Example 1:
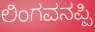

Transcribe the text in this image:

ಲಿಂಗವನಪ್ಪಿ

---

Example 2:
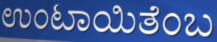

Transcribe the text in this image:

ಉಂಟಾಯಿತೆಂಬ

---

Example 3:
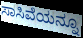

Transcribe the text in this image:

ಸಾಸಿವೆಯನ್ನೂ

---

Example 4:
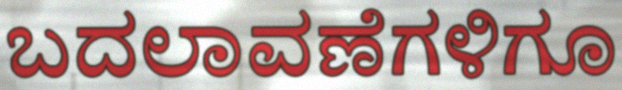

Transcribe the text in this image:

ಬದಲಾವಣೆಗಳಿಗೂ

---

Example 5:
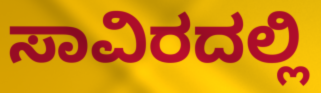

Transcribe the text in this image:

ಸಾವಿರದಲ್ಲಿ